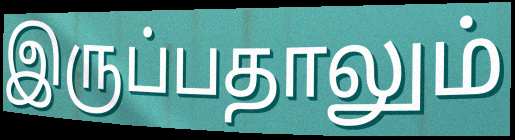
இருப்பதாலும்